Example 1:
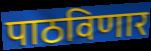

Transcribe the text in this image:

पाठविणार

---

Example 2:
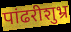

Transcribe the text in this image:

पांढरीशुभ्र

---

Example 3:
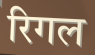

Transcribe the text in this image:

रिगल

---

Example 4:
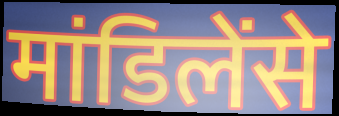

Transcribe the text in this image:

मांडिलेंसे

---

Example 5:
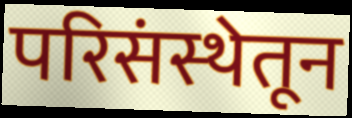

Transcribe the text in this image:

परिसंस्थेतून